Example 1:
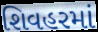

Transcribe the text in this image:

શિવહરમાં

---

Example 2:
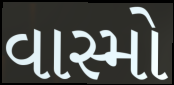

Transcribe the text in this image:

વાસ્મો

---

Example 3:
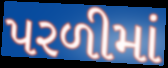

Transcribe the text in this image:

પરળીમાં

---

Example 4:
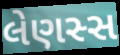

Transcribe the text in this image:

લેણસ્સ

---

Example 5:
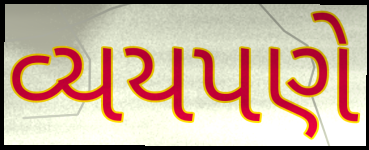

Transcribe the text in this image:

વ્યયપણે